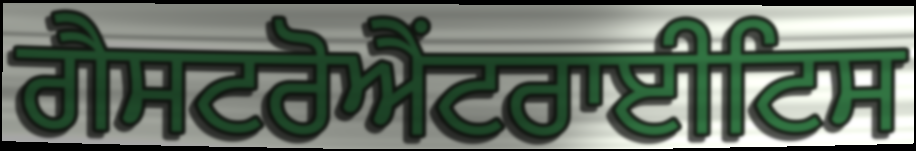
ਗੈਸਟਰੋਐਂਟਰਾਈਟਿਸ